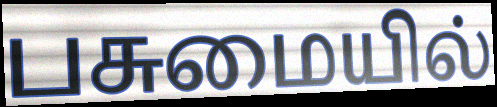
பசுமையில்